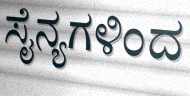
ಸೈನ್ಯಗಳಿಂದ